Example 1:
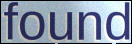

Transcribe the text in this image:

found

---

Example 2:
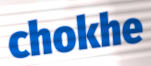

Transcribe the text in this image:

chokhe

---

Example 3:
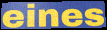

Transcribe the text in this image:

eines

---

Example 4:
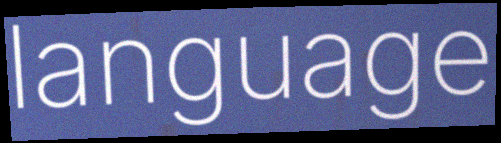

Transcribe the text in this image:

language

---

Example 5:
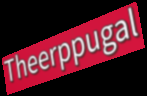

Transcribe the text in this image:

Theerppugal